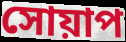
সোয়াপ